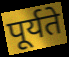
पूर्यते